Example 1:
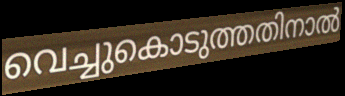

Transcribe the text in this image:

വെച്ചുകൊടുത്തതിനാൽ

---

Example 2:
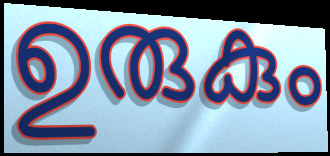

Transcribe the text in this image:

ഉരുകും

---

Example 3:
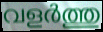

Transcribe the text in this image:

വളർത്തു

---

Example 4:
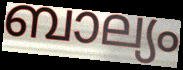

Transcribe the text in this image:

ബാല്യം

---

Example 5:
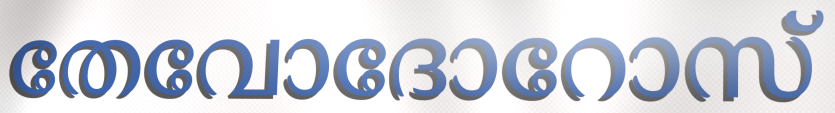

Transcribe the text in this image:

തേവോദോറോസ്